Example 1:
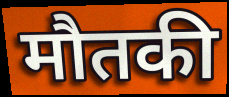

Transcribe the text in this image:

मौतकी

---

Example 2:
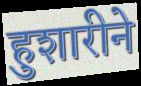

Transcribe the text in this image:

हुशारीने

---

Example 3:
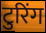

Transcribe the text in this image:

टुरिंग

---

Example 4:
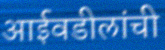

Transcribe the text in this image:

आईवडीलांची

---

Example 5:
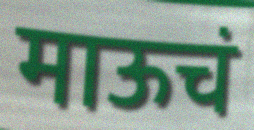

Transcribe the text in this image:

माऊचं